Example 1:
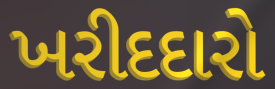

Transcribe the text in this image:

ખરીદદારો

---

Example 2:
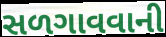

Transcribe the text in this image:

સળગાવવાની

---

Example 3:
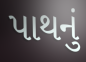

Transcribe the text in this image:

પાથનું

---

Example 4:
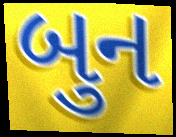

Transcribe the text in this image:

બુન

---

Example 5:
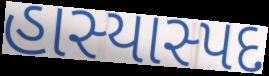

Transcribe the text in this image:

હાસ્યાસ્પદ